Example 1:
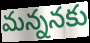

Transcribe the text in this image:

మన్ననకు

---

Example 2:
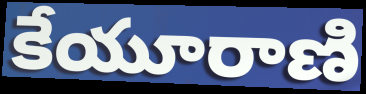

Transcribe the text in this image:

కేయూరాణి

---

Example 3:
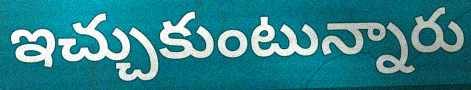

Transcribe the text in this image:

ఇచ్చుకుంటున్నారు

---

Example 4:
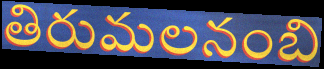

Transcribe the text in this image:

తిరుమలనంబి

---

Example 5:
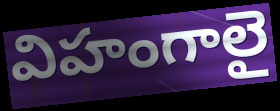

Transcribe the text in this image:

విహంగాలై